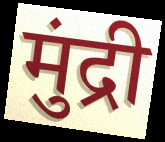
मुंद्री